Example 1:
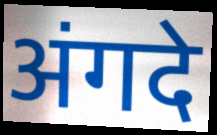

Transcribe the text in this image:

अंगदे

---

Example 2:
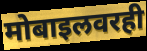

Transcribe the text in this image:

मोबाइलवरही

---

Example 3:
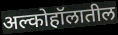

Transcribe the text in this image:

अल्कोहॉलातील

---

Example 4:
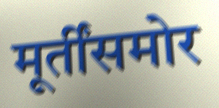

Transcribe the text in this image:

मूर्तींसमोर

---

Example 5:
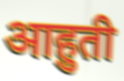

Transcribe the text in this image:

आहुती